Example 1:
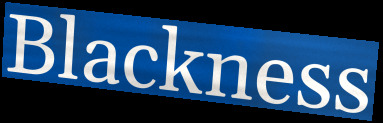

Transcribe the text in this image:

Blackness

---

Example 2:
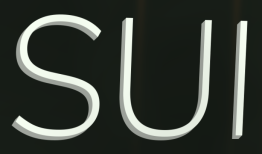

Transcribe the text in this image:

SUI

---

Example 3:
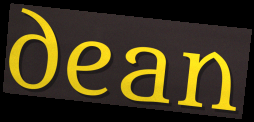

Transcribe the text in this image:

dean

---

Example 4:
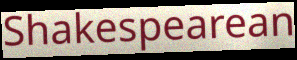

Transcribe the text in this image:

Shakespearean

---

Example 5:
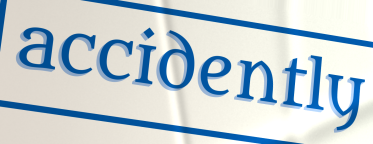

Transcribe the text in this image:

accidently